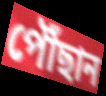
পৌঁছান